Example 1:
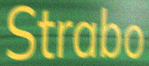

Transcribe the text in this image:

Strabo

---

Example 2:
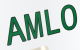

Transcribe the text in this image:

AMLO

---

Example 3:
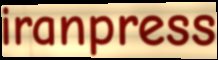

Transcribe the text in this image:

iranpress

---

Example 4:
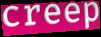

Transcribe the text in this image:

creep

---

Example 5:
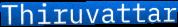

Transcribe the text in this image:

Thiruvattar